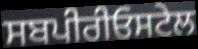
ਸਬਪੀਰੀਓਸਟੇਲ